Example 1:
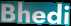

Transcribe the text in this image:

Bhedi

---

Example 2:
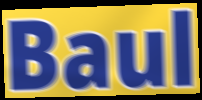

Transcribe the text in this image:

Baul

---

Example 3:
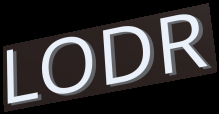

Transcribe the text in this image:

LODR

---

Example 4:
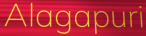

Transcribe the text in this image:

Alagapuri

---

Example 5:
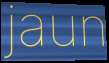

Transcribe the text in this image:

jaun